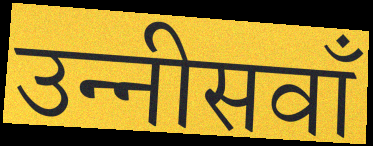
उन्‍नीसवाँ